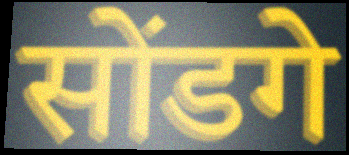
सोंडगे